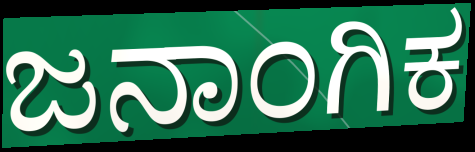
ಜನಾಂಗಿಕ